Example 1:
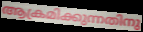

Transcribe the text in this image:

ആക്രമിക്കുന്നതിനു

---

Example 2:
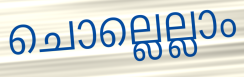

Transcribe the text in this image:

ചൊല്ലെല്ലാം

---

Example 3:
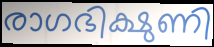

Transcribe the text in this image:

രാഗഭിക്ഷുണി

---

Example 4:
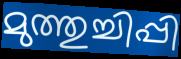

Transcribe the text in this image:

മുത്തുച്ചിപ്പി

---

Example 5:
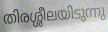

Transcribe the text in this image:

തിരശ്ശീലയിടുന്നു